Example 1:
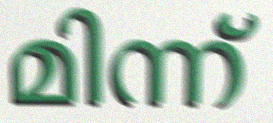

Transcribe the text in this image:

മിന്ന്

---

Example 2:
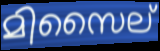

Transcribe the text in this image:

മിസൈല്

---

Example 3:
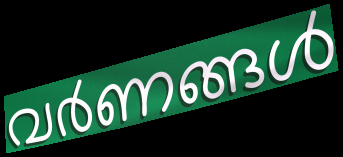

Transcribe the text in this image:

വർണങ്ങൾ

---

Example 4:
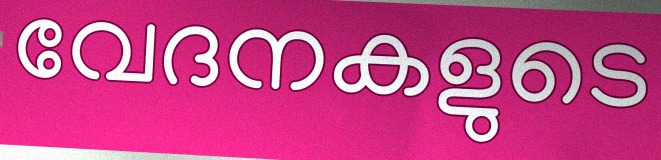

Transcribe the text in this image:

വേദനകളുടെ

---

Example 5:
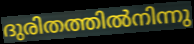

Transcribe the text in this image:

ദുരിതത്തിൽനിന്നു